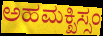
ಅಹಮಕ್ಖಿಸ್ಸಂ